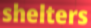
shelters